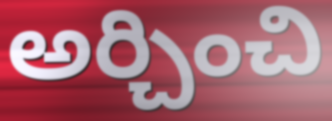
అర్చించి